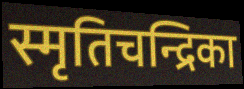
स्मृतिचन्द्रिका